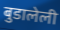
बुडालेली